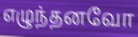
எழுந்தனவோ